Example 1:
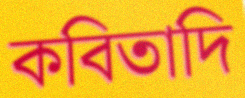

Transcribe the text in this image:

কবিতাদি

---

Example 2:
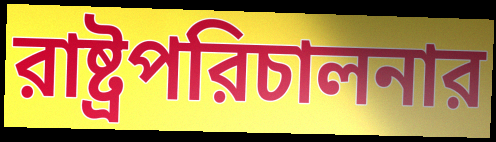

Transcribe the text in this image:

রাষ্ট্রপরিচালনার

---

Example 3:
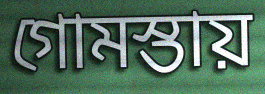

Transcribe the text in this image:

গোমস্তায়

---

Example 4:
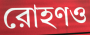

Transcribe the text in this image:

রোহণও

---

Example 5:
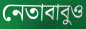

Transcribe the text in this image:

নেতাবাবুও